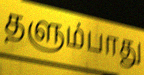
தளும்பாது